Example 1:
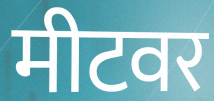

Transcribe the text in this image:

मीटवर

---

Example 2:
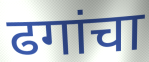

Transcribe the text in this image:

ढगांचा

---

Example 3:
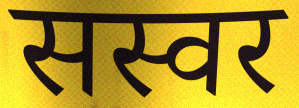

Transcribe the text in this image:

सस्वर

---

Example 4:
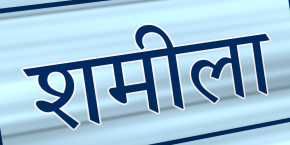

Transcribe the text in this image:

शमीला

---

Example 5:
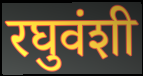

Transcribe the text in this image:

रघुवंशी